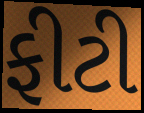
ફીટી